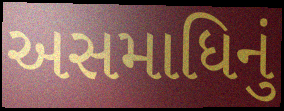
અસમાધિનું